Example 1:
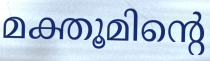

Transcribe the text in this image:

മക്തൂമിന്റെ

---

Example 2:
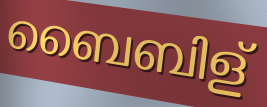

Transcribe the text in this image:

ബൈബിള്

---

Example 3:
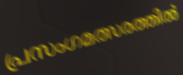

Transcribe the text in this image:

പ്രസംഗമത്സരത്തിൽ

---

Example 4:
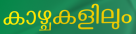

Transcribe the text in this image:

കാഴ്ചകളിലും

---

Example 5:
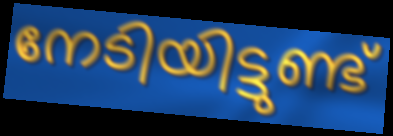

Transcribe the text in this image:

നേടിയിട്ടുണ്ട്